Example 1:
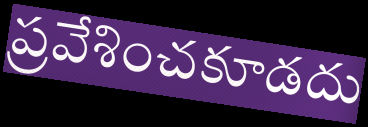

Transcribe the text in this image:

ప్రవేశించకూడదు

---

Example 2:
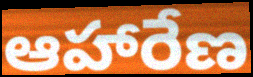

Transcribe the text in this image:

ఆహారేణ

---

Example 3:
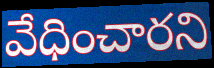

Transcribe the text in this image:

వేధించారని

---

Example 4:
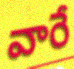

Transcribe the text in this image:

వారే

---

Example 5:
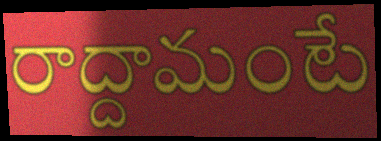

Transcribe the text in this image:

రాద్దామంటే